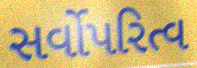
સર્વોપરિત્વ